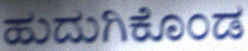
ಹುದುಗಿಕೊಂಡ